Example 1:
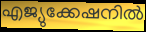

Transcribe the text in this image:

എജ്യുക്കേഷനിൽ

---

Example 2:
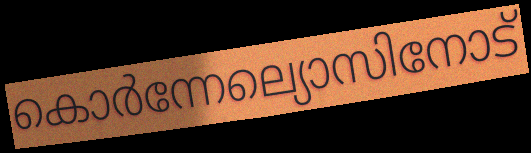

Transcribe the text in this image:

കൊർന്നേല്യൊസിനോട്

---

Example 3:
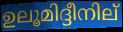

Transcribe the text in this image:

ഉലൂമിദ്ദീനില്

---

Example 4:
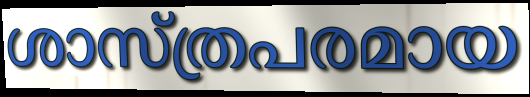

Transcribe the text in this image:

ശാസ്ത്രപരമായ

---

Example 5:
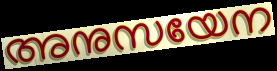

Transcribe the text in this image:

അനുസയേന